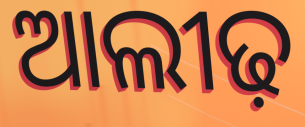
ଆଲୀଢ଼